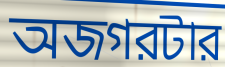
অজগরটার